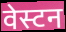
वेस्टन